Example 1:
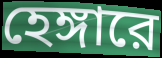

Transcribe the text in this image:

হেঙ্গারে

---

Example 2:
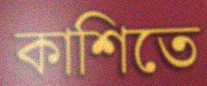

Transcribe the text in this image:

কাশিতে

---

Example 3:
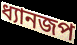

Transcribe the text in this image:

ধ্যানজপ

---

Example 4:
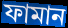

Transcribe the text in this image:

ফামান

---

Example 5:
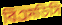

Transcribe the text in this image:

বিএমডিসি